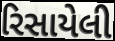
રિસાયેલી